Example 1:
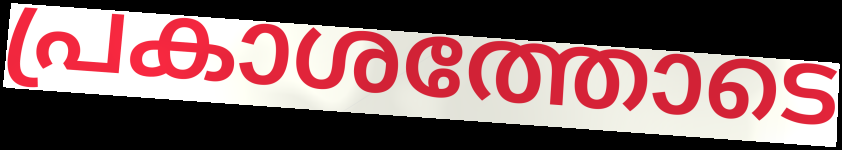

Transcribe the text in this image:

പ്രകാശത്തോടെ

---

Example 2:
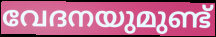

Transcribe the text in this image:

വേദനയുമുണ്ട്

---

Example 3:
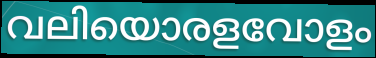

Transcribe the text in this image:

വലിയൊരളവോളം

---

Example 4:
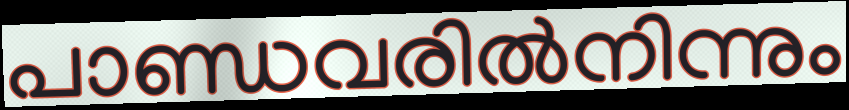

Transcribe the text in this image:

പാണ്ഡവരിൽനിന്നും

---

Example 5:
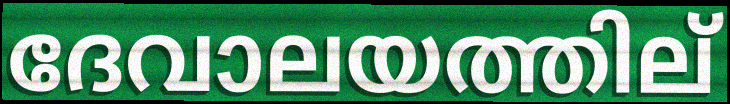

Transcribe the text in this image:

ദേവാലയത്തില്